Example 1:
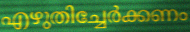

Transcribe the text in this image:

എഴുതിച്ചേർക്കണം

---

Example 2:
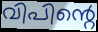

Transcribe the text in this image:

വിപിന്റെ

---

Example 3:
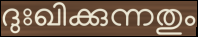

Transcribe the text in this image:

ദുഃഖിക്കുന്നതും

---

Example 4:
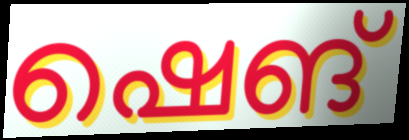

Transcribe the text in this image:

ഷെങ്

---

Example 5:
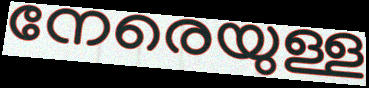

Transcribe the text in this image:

നേരെയുള്ള